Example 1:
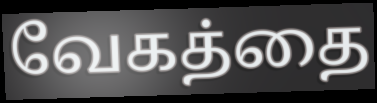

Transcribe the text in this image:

வேகத்தை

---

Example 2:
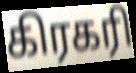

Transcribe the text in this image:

கிரகரி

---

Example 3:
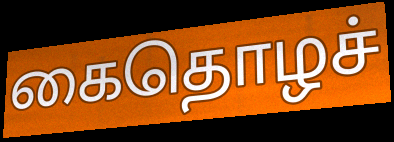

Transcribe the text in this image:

கைதொழச்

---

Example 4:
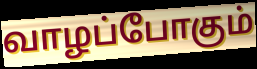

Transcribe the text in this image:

வாழப்போகும்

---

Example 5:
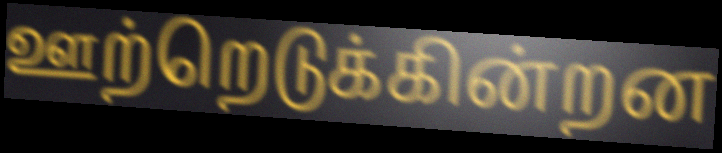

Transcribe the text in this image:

ஊற்றெடுக்கின்றன